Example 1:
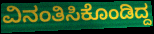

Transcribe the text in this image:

ವಿನಂತಿಸಿಕೊಂಡಿದ್ದ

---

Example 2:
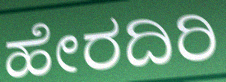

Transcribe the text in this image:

ಹೇರದಿರಿ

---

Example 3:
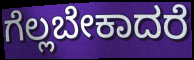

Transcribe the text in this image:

ಗೆಲ್ಲಬೇಕಾದರೆ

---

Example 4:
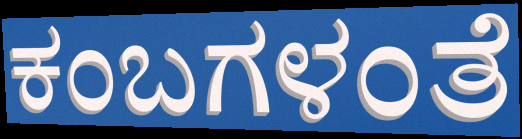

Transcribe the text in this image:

ಕಂಬಗಳಂತೆ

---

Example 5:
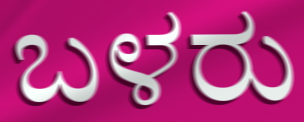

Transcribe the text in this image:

ಬಳರು